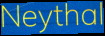
Neythal